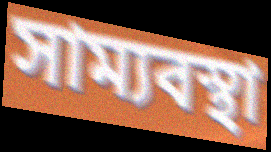
সাম্যবস্থা